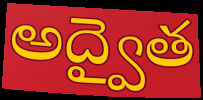
అద్వైత